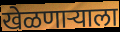
खेळणाऱ्याला